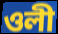
ওলী